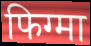
फिग्मा